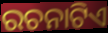
ରଚନାଟିଏ